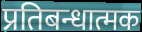
प्रतिबन्धात्मक